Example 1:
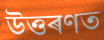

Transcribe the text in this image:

উত্তৰণত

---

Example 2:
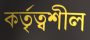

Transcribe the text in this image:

কৰ্তৃত্বশীল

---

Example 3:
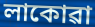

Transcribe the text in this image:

লাকোৱা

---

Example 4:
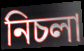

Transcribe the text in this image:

নিচলা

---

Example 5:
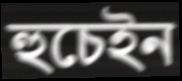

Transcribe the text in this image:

হুচেইন